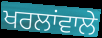
ਖਰਲਾਂਵਾਲੇ